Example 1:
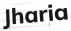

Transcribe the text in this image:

Jharia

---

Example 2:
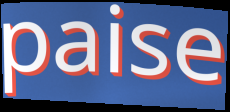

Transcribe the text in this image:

paise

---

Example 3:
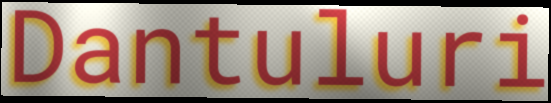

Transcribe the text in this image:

Dantuluri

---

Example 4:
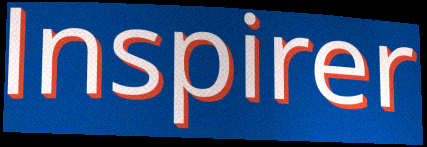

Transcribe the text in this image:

Inspirer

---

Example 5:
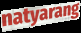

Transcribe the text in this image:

natyarang